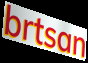
brtsan